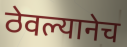
ठेवल्यानेच